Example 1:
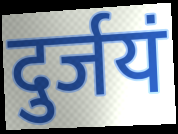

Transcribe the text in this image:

दुर्जयं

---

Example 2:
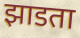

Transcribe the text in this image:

झाडता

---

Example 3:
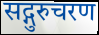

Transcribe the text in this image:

सद्गुरुचरण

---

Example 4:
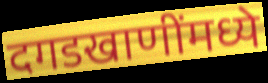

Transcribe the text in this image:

दगडखाणींमध्ये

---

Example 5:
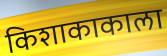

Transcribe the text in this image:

किशाकाकाला